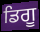
ਡਿਗੂ